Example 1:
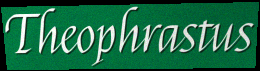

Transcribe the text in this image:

Theophrastus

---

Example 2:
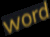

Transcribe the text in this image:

word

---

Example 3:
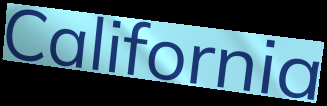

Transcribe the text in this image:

California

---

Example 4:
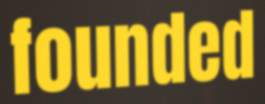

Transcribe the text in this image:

founded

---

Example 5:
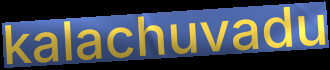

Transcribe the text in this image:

kalachuvadu